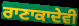
ਰਾਣਾਕਾਦੇਵੀ